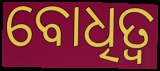
ବୋଧିତ୍ୱ